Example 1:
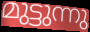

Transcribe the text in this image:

മുട്ടുന്നു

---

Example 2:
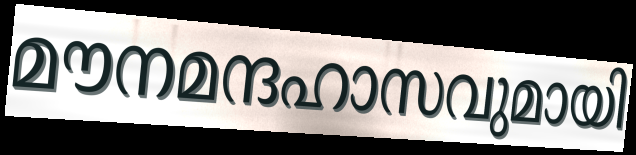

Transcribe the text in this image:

മൗനമന്ദഹാസവുമായി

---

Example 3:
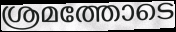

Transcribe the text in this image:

ശ്രമത്തോടെ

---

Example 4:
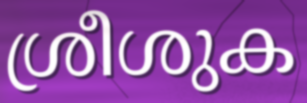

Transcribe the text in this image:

ശ്രീശുക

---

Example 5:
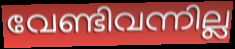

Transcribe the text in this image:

വേണ്ടിവന്നില്ല